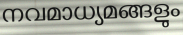
നവമാധ്യമങ്ങളും